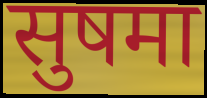
सुषमा